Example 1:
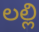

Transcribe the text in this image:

లల్లి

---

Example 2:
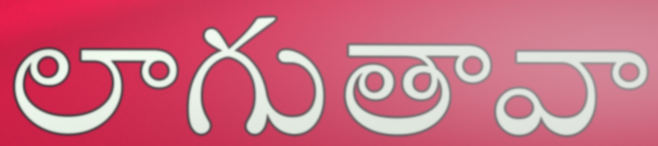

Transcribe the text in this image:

లాగుతావా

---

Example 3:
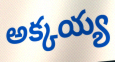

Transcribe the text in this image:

అక్కయ్య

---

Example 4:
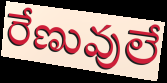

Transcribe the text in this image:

రేణువులే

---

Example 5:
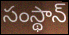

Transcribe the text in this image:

సంస్థాన్